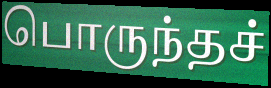
பொருந்தச்